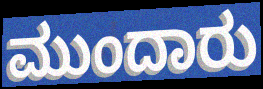
ಮುಂದಾರು